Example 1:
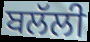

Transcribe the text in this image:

ਬਲੱਲੀ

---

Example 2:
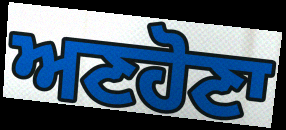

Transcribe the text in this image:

ਅਣਹੋਣਾ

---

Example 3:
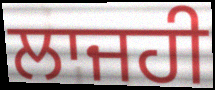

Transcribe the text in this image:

ਲਾਜਹੀ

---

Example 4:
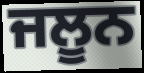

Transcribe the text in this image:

ਜਲੂਨ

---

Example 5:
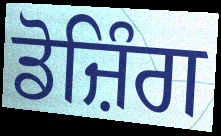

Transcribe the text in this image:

ਡੋਜ਼ਿੰਗ